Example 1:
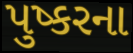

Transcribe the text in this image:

પુષ્કરના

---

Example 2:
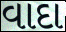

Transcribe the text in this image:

વાદા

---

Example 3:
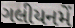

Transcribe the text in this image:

ગલીયનમેં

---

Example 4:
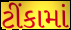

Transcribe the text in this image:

ટીંકામાં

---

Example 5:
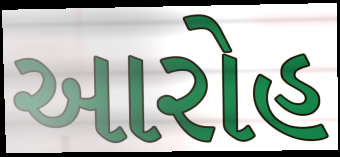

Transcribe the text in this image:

આરોહ